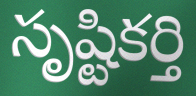
సృష్టికర్తి